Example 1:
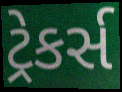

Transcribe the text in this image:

ટ્રેકર્સ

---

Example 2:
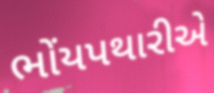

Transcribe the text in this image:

ભોંયપથારીએ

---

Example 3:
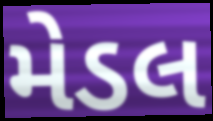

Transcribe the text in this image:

મેડલ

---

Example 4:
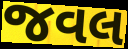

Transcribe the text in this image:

જવલ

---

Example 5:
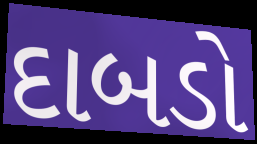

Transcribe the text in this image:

દાબડો